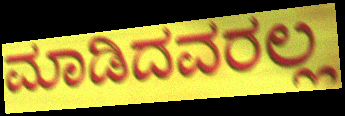
ಮಾಡಿದವರಲ್ಲ